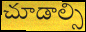
చూడాల్సి